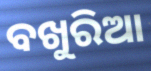
ବଖୁରିଆ